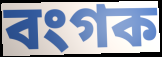
বংগক